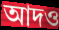
আদও